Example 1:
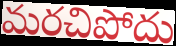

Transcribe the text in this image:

మరచిపోదు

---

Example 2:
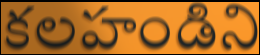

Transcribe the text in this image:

కలహండిని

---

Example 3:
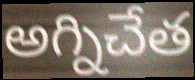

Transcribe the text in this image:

అగ్నిచేత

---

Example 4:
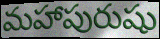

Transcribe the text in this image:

మహాపురుషు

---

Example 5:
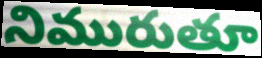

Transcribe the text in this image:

నిమురుతూ